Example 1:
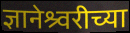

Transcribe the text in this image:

ज्ञानेश्र्वरीच्या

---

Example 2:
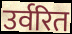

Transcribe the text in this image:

उर्वरित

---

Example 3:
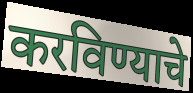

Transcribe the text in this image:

करविण्याचे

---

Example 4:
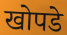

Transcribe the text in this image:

खोपडे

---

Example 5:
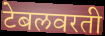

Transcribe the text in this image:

टेबलवरती